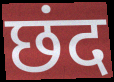
छंद